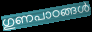
ഗുണപാഠങ്ങൾ